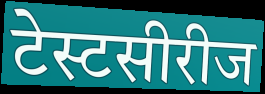
टेस्टसीरीज